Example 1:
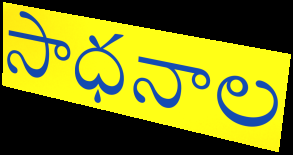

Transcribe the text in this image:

సాధనాల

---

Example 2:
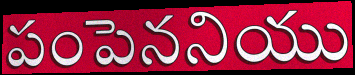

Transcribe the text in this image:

పంపెననియు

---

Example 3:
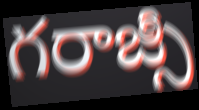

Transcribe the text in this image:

గరాజ్సీ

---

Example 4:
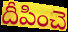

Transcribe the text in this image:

దీపించె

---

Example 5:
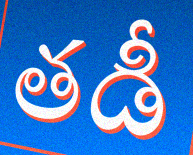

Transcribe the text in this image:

తడీ